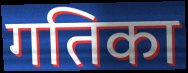
गतिका